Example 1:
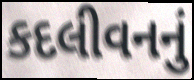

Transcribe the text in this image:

કદલીવનનું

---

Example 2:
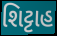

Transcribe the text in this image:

શિટ્ટાહ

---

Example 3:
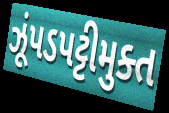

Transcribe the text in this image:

ઝૂંપડપટ્ટીમુક્ત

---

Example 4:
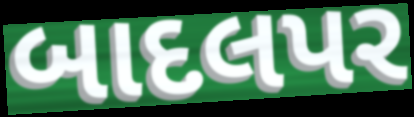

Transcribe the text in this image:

બાદલપર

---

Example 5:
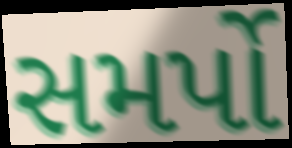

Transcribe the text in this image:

સમર્પો